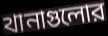
থানাগুলোর